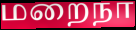
மறைநா